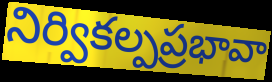
నిర్వికల్పప్రభావా